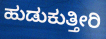
ಹುಡುಕುತ್ತೀರಿ